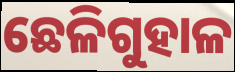
ଛେଳିଗୁହାଳ